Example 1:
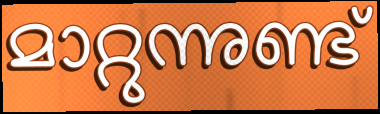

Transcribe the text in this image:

മാറ്റുന്നുണ്ട്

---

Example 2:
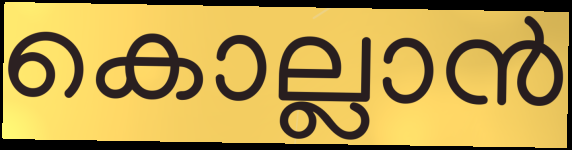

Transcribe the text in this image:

കൊല്ലാൻ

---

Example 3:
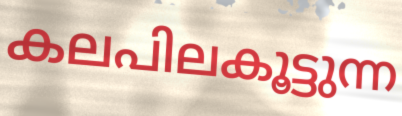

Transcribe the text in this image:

കലപിലകൂട്ടുന്ന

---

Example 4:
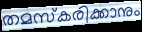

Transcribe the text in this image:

തമസ്കരിക്കാനും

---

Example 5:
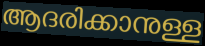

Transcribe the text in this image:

ആദരിക്കാനുള്ള